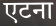
एटना